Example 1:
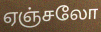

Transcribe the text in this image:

ஏஞ்சலோ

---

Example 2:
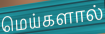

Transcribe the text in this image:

மெய்களால்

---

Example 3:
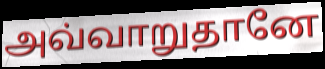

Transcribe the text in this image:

அவ்வாறுதானே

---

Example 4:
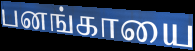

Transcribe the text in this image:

பனங்காயை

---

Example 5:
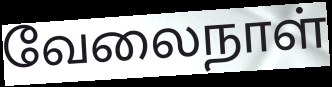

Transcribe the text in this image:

வேலைநாள்